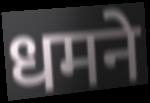
धमने